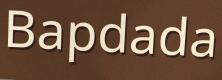
Bapdada